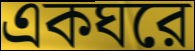
একঘরে